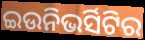
ଇଉନିଭର୍ସିଟିର